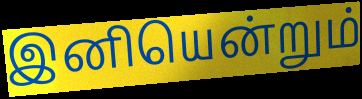
இனியென்றும்